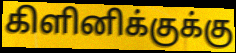
கிளினிக்குக்கு